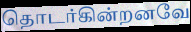
தொடர்கின்றனவே